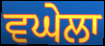
ਵਘੇਲਾ